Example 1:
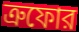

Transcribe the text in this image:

ত্রুফোর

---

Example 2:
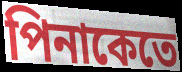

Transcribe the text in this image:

পিনাকেতে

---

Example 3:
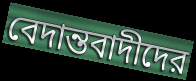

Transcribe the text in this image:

বেদান্তবাদীদের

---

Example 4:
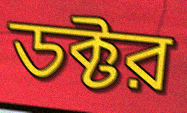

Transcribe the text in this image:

ডক্টর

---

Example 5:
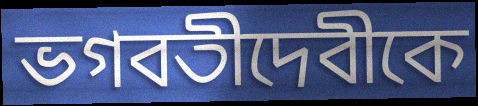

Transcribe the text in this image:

ভগবতীদেবীকে